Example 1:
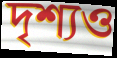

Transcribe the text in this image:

দৃশ্যও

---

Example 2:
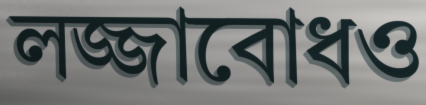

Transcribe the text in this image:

লজ্জাবোধও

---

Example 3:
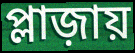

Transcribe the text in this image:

প্লাজ়ায়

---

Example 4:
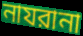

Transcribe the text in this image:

নাযরানা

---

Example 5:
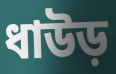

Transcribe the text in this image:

ধাউড়